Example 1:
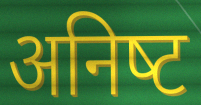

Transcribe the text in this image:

अनिष्‍ट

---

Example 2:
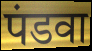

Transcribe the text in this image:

पंडवा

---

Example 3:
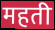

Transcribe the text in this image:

महती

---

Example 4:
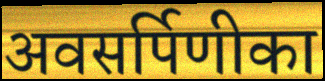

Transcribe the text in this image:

अवसर्पिणीका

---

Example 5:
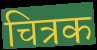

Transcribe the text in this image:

चित्रक